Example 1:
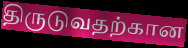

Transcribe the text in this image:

திருடுவதற்கான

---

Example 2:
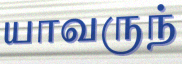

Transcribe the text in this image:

யாவருந்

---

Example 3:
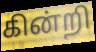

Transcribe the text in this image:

கின்றி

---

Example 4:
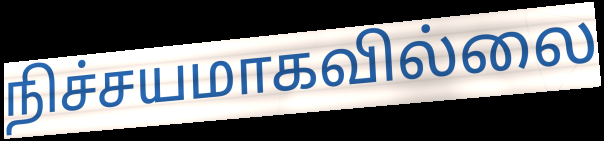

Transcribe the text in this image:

நிச்சயமாகவில்லை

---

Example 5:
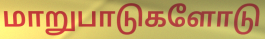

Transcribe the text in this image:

மாறுபாடுகளோடு